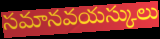
సమానవయస్కులు